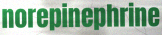
norepinephrine